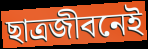
ছাত্রজীবনেই